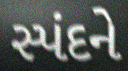
સ્પંદને